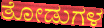
ತೋಡುಗಳ